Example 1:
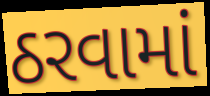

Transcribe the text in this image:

ઠરવામાં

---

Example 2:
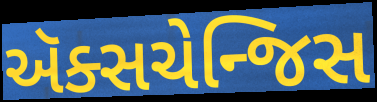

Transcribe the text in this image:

ઍક્સચેન્જિસ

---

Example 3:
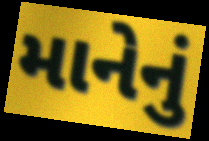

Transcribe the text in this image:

માનેનું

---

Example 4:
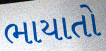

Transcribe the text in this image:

ભાયાતો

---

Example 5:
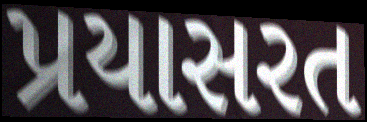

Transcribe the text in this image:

પ્રયાસરત